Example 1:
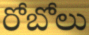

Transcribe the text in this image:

రోబోలు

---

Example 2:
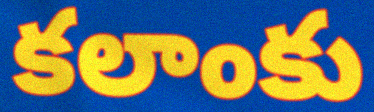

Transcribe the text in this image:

కలాంకు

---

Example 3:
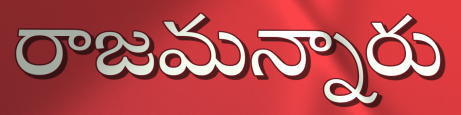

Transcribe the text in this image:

రాజమన్నారు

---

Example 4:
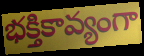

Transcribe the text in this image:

భక్తికావ్యంగా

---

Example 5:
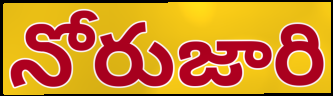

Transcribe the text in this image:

నోరుజారి